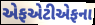
એફએટીએફના